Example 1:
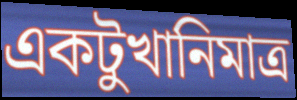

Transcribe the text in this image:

একটুখানিমাত্র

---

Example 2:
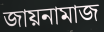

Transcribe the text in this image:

জায়নামাজ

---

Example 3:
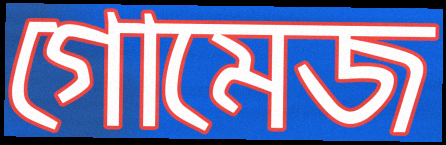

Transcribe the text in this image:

গোমেজ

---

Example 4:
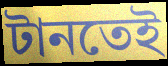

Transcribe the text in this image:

টানতেই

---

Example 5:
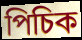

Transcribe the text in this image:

পিচিক